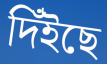
দিঁইছে